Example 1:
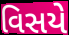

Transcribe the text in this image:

વિસયે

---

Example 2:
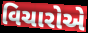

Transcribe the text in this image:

વિચારોએ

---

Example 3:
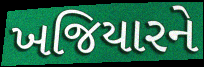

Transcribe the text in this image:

ખજિયારને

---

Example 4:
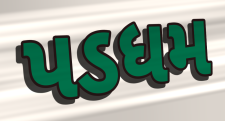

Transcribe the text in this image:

પડધમ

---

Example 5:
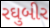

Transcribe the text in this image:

રઘુબીર